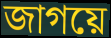
জাগয়ে